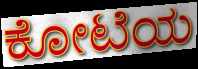
ಕೋಟೆಯ